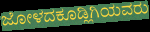
ಜೋಳದಕೂಡ್ಲಿಗಿಯವರು